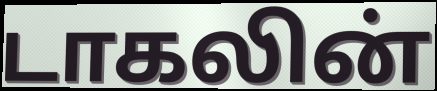
டாகலின்